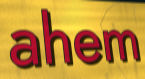
ahem